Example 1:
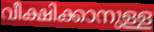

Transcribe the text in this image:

വീക്ഷിക്കാനുള്ള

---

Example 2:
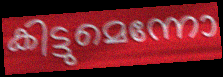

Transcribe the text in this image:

കിട്ടുമെന്നോ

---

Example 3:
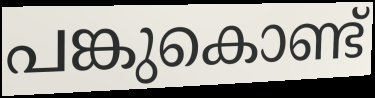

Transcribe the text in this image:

പങ്കുകൊണ്ട്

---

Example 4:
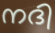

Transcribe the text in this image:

നദി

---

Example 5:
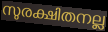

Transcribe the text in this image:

സുരക്ഷിതനല്ല